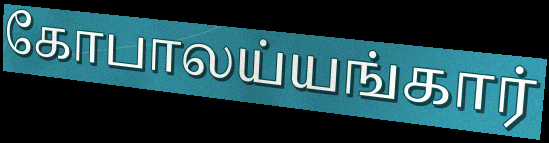
கோபாலய்யங்கார்